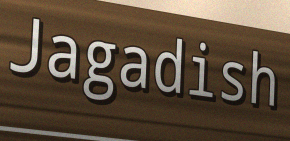
Jagadish